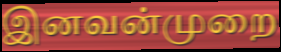
இனவன்முறை